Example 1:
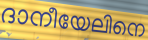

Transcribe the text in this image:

ദാനീയേലിനെ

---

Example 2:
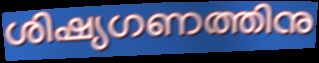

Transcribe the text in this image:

ശിഷ്യഗണത്തിനു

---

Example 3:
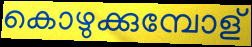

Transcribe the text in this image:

കൊഴുക്കുമ്പോള്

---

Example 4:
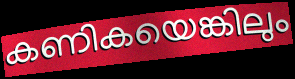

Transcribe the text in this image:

കണികയെങ്കിലും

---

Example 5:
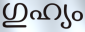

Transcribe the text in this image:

ഗുഹ്യം